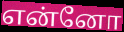
என்னோ